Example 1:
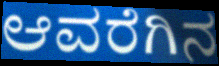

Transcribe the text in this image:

ಆವರೆಗಿನ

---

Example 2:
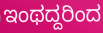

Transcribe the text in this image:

ಇಂಥದ್ದರಿಂದ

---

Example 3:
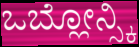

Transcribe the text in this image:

ಒಬ್ಲೋನ್ಸ್ಕಿ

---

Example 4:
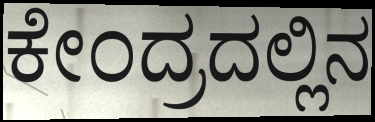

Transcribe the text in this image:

ಕೇಂದ್ರದಲ್ಲಿನ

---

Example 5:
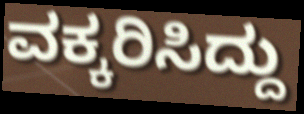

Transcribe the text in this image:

ವಕ್ಕರಿಸಿದ್ದು